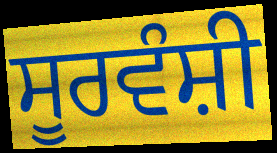
ਸੂਰਵੰਸ਼ੀ